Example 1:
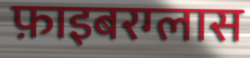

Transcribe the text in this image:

फ़ाइबरग्लास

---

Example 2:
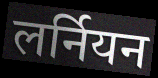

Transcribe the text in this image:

लर्नियन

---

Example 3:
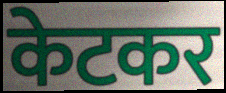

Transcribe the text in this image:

केटकर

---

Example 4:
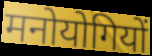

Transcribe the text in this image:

मनोयोगियों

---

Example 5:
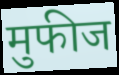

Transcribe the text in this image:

मुफीज